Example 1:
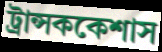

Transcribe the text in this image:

ট্রান্সককেশাস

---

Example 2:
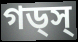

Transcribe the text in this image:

গড্স্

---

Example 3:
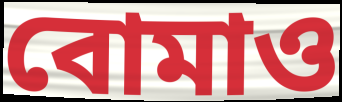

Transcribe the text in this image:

বোমাও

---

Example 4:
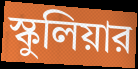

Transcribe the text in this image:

স্কুলিয়ার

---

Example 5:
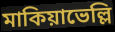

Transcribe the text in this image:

মাকিয়াভেল্লি